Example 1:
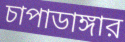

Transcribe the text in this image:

চাপাডাঙ্গার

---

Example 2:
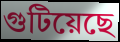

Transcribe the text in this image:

গুটিয়েছে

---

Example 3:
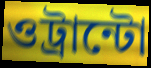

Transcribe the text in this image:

ওট্রান্টো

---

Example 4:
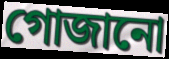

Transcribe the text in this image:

গোজানো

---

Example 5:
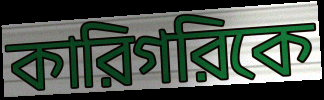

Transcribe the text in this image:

কারিগরিকে